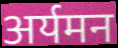
अर्यमन